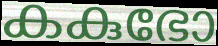
കകുഭോ